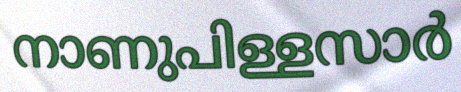
നാണുപിള്ളസാർ